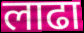
लाढा